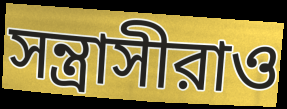
সন্ত্রাসীরাও